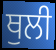
ਥੁਲੀ